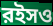
রইসও